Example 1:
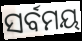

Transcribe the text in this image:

ସର୍ବମୟ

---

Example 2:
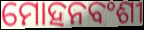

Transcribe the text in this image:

ମୋହନବଂଶୀ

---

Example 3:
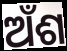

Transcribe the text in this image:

ଅଁଶ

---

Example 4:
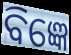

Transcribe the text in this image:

ବିଜ୍ଞେ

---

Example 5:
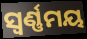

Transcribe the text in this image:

ସ୍ୱର୍ଣ୍ଣମୟ